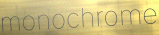
monochrome